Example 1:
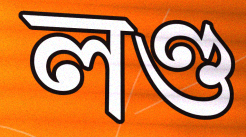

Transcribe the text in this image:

লণ্ড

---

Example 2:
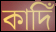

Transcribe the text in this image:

কাদিঁ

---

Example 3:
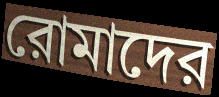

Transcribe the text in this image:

রোমাদের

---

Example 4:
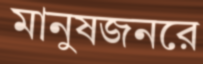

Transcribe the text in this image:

মানুষজনরে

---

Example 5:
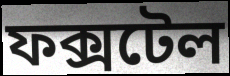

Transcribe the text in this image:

ফক্সটেল